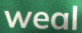
weal